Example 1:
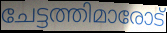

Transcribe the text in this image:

ചേട്ടത്തിമാരോട്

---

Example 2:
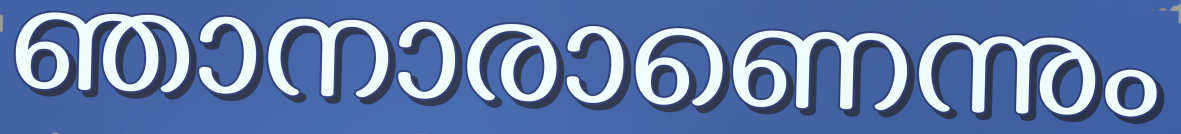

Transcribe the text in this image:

ഞാനാരാണെന്നും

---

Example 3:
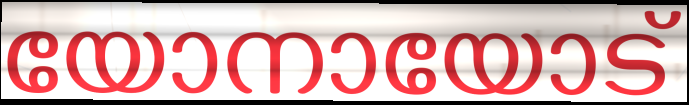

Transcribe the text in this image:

യോനായോട്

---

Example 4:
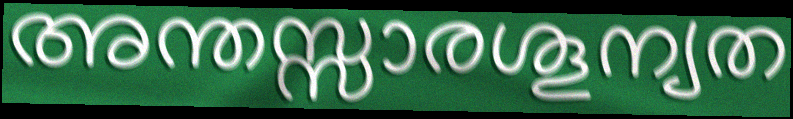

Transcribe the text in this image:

അന്തസ്സാരശൂന്യത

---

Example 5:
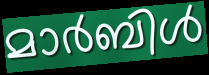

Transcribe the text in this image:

മാർബിൾ